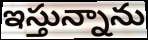
ఇస్తున్నాను